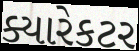
ક્યારેકટર